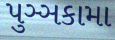
પુઞ્ઞકામા